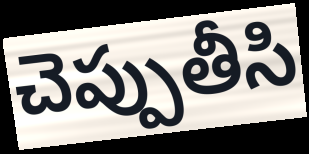
చెప్పుతీసి